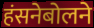
हंसनेबोलने